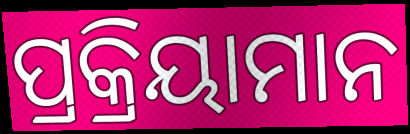
ପ୍ରକ୍ରିୟାମାନ